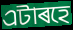
এটাৰহে